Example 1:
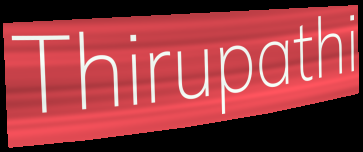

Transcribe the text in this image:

Thirupathi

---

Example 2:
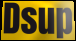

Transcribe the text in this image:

Dsup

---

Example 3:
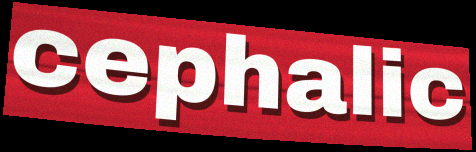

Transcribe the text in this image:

cephalic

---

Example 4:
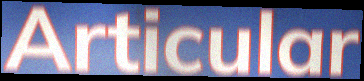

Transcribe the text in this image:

Articular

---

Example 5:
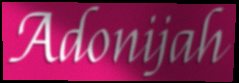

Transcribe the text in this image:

Adonijah